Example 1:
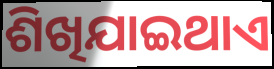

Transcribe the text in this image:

ଶିଖିଯାଇଥାଏ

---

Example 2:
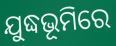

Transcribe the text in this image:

ଯୁଦ୍ଧଭୂମିରେ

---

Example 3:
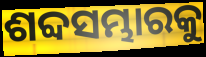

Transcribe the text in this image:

ଶବ୍ଦସମ୍ଭାରକୁ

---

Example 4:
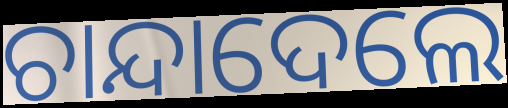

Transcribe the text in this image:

ଚାନ୍ଦାଦେଲେ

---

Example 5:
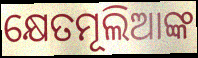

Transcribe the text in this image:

କ୍ଷେତମୂଲିଆଙ୍କ